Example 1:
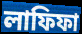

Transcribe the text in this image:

লাফিফা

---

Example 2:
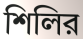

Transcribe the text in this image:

শিলির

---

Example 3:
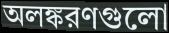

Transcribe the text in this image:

অলঙ্করণগুলো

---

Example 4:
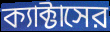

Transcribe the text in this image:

ক্যাক্টাসের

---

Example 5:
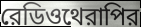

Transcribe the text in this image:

রেডিওথেরাপির